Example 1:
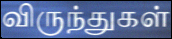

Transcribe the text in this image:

விருந்துகள்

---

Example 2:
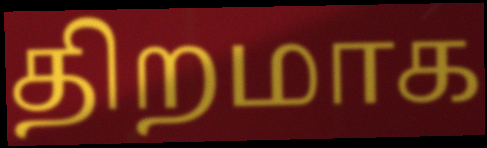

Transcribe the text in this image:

திறமாக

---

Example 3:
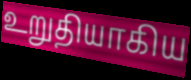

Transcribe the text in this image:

உறுதியாகிய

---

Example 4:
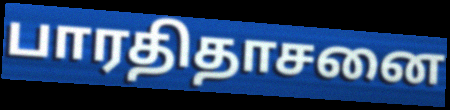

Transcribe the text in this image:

பாரதிதாசனை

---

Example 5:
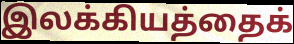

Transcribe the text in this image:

இலக்கியத்தைக்